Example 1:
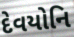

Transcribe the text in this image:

દેવયોનિ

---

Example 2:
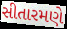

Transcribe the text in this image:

સીતારમણે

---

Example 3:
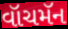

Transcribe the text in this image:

વૉચમૅન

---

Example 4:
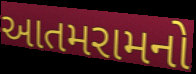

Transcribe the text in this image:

આતમરામનો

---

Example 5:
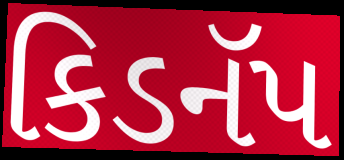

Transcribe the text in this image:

કિડનૅપ